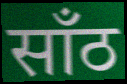
साँठ